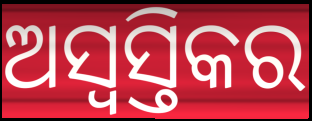
ଅସ୍ୱସ୍ତିକର